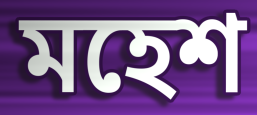
মহেশ